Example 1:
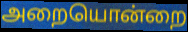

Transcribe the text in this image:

அறையொன்றை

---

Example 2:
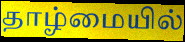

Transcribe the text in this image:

தாழ்மையில்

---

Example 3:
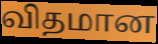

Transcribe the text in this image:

விதமான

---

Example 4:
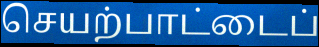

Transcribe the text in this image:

செயற்பாட்டைப்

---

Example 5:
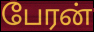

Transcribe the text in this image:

பேரன்